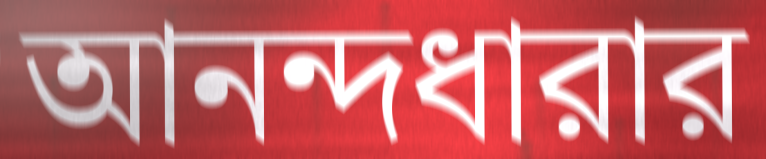
আনন্দধারার